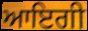
ਆਇਗੀ